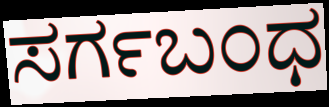
ಸರ್ಗಬಂಧ